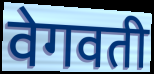
वेगवती